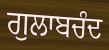
ਗੁਲਾਬਚੰਦ